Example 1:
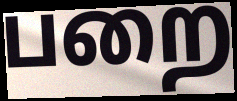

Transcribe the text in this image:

பறை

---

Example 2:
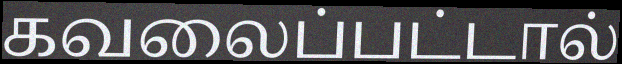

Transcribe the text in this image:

கவலைப்பட்டால்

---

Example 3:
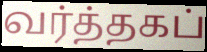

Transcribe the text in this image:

வர்த்தகப்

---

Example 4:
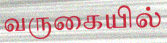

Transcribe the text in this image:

வருகையில்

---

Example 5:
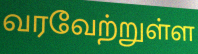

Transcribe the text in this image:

வரவேற்றுள்ள